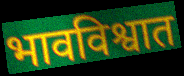
भावविश्वात